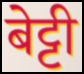
बेट्टी